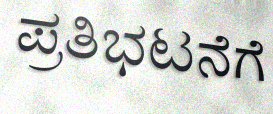
ಪ್ರತಿಭಟನೆಗೆ